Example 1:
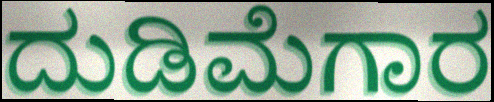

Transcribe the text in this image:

ದುಡಿಮೆಗಾರ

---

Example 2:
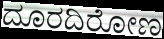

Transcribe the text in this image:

ದೂರದಿರೋಣ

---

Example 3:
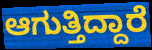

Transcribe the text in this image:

ಆಗುತ್ತಿದ್ದಾರೆ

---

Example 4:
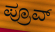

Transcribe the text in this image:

ಪ್ರೂವ್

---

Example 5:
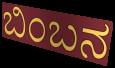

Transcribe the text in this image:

ಬಿಂಬನ